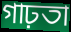
গাঢ়তা